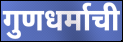
गुणधर्माची